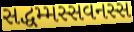
સદ્ધમ્મસ્સવનસ્સ